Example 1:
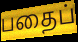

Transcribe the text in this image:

பதைப்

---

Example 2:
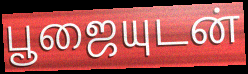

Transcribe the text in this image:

பூஜையுடன்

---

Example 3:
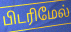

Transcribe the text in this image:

பிடரிமேல்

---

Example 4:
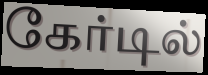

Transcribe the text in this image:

கேர்டில்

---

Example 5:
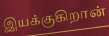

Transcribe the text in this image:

இயக்குகிறான்